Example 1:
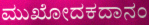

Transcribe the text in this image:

ಮುಖೋದಕದಾನಂ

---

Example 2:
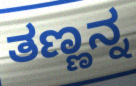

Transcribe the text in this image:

ತಣ್ಣನ್ನ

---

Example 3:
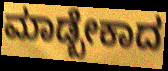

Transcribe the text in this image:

ಮಾಡ್ಬೇಕಾದ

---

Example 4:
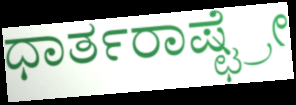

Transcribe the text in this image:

ಧಾರ್ತರಾಷ್ಟ್ರೇ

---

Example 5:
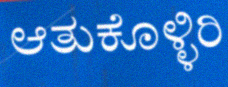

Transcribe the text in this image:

ಆತುಕೊಳ್ಳಿರಿ